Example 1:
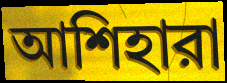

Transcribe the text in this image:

আশিহারা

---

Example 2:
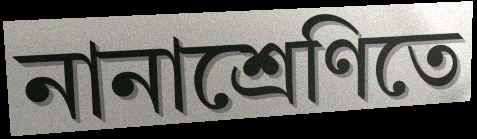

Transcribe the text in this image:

নানাশ্রেণিতে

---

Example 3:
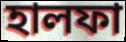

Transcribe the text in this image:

হালফা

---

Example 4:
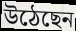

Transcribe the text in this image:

উঠেছেন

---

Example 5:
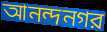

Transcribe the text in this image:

আনন্দনগর